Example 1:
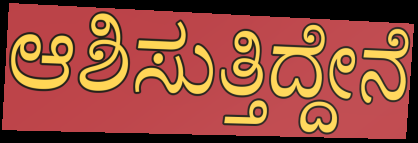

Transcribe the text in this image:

ಆಶಿಸುತ್ತಿದ್ದೇನೆ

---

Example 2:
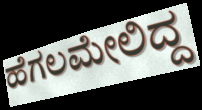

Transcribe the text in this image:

ಹೆಗಲಮೇಲಿದ್ದ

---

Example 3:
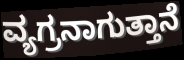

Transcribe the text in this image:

ವ್ಯಗ್ರನಾಗುತ್ತಾನೆ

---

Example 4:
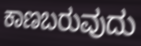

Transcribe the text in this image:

ಕಾಣಬರುವುದು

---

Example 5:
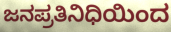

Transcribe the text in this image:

ಜನಪ್ರತಿನಿಧಿಯಿಂದ